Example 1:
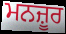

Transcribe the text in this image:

ਮਨਜ਼ੂਰ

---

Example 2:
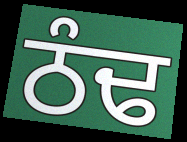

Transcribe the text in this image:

ਠੰਢ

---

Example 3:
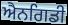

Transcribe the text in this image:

ਐਨਗਿਡੀ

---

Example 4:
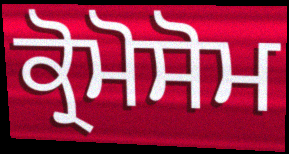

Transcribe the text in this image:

ਕ੍ਰੋਮੋਸੋਮ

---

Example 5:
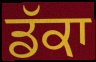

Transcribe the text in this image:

ਡੱਕਾ